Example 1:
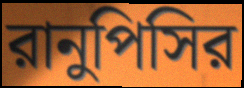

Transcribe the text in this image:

রানুপিসির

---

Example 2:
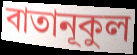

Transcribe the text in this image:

বাতানূকুল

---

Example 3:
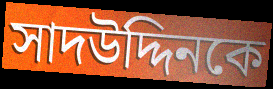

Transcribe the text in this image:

সাদউদ্দিনকে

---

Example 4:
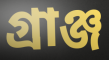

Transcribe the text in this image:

গ্রাঞ্জ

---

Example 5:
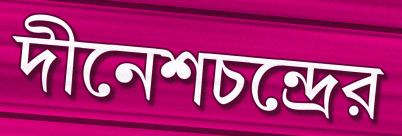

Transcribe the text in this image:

দীনেশচন্দ্রের